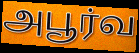
அபூர்வ